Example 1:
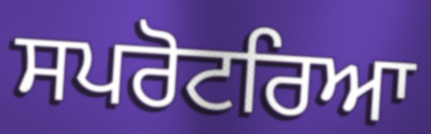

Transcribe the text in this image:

ਸਪਰੋਟਰਿਆ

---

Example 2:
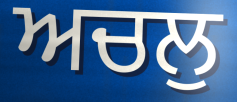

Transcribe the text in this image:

ਅਚਲੁ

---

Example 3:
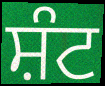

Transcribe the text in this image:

ਸ਼ੰਟ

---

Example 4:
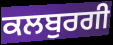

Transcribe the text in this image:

ਕਲਬੁਰਗੀ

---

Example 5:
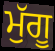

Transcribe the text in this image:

ਮੁੱਗੂ